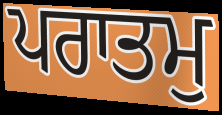
ਪਰਾਤਮੁ